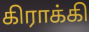
கிராக்கி